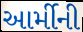
આર્મીની